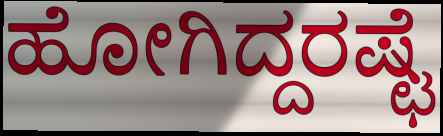
ಹೋಗಿದ್ದರಷ್ಟೆ